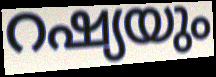
റഷ്യയും